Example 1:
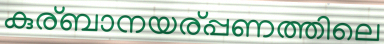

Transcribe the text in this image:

കുര്ബാനയര്പ്പണത്തിലെ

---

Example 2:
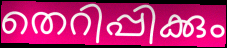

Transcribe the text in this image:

തെറിപ്പിക്കും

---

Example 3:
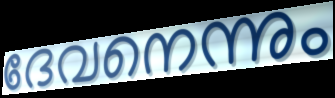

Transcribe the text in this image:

ദേവനെന്നും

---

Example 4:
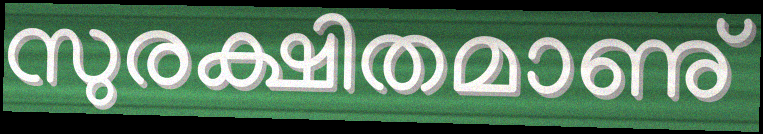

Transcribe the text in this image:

സുരക്ഷിതമാണു്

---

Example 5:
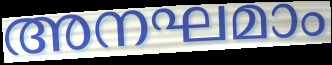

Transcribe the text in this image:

അനഘമാം